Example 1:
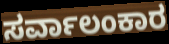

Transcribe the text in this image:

ಸರ್ವಾಲಂಕಾರ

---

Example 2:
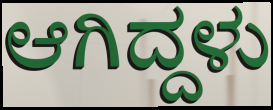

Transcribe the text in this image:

ಆಗಿದ್ದಳು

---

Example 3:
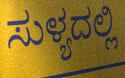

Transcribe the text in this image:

ಸುಳ್ಯದಲ್ಲಿ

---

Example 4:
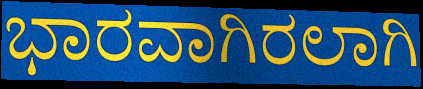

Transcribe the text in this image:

ಭಾರವಾಗಿರಲಾಗಿ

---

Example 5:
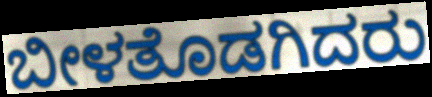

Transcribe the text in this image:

ಬೀಳತೊಡಗಿದರು